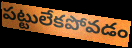
పట్టులేకపోవడం